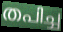
തപിച്ച